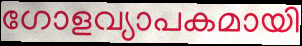
ഗോളവ്യാപകമായി